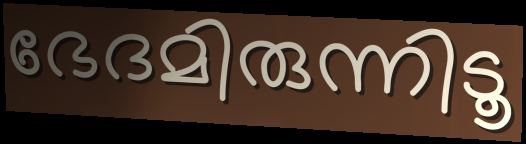
ഭേദമിരുന്നിടൂ